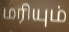
மரியும்